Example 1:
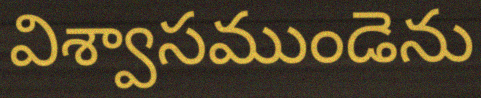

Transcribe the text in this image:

విశ్వాసముండెను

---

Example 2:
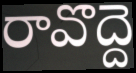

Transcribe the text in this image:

రావొద్దె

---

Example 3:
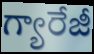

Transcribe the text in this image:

గ్యారేజీ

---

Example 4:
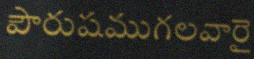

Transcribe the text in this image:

పౌరుషముగలవారై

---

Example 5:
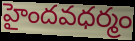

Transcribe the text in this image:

హైందవధర్మం